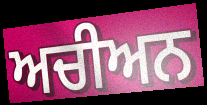
ਅਚੀਅਨ